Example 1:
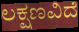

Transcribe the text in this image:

ಲಕ್ಷಣವಿದೆ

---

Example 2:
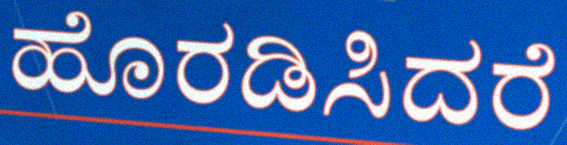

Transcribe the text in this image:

ಹೊರಡಿಸಿದರೆ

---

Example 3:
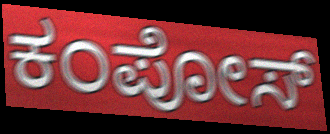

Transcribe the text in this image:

ಕಂಪೋಸ್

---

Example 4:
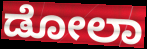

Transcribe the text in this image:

ಡೋಲಾ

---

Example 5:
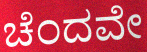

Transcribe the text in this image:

ಚೆಂದವೇ